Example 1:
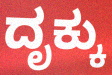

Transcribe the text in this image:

ದೃಕ್ಕು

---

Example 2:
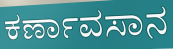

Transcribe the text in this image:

ಕರ್ಣಾವಸಾನ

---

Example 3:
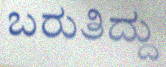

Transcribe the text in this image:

ಬರುತಿದ್ದು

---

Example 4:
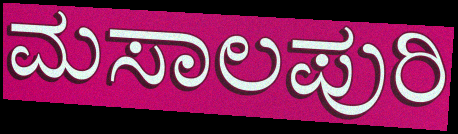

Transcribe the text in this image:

ಮಸಾಲಪುರಿ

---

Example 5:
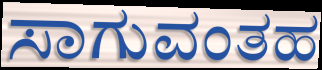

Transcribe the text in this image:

ಸಾಗುವಂತಹ